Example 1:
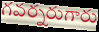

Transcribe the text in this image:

గవర్నరుగారు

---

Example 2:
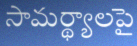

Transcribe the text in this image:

సామర్థ్యాలపై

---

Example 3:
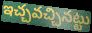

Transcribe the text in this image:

ఇచ్చవచ్చినట్టు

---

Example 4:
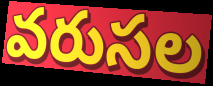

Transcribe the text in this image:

వరుసల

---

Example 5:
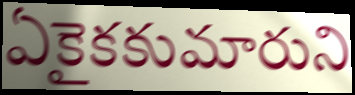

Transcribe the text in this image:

ఏకైకకుమారుని